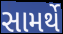
સામર્થે